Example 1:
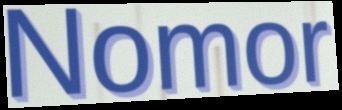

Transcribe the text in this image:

Nomor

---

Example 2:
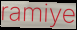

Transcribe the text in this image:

ramiye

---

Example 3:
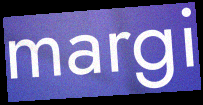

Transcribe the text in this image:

margi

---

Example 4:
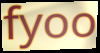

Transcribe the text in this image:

fyoo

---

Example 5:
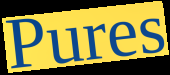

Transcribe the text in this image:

Pures